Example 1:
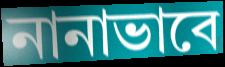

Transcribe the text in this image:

নানাভাবে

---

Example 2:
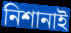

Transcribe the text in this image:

নিশানাই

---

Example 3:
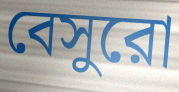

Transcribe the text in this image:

বেসুরো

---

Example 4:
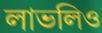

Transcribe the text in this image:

লাভলিও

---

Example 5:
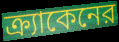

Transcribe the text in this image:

ক্র্যাকেনের